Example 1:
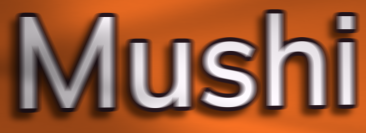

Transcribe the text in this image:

Mushi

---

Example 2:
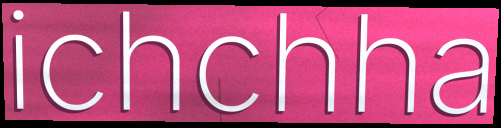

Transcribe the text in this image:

ichchha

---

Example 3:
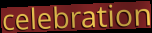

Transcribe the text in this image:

celebration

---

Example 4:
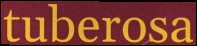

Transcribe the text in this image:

tuberosa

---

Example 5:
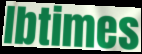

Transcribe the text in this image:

Ibtimes